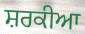
ਸ਼ਰਕੀਆ